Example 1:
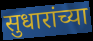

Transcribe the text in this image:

सुधारांच्या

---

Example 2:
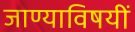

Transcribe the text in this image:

जाण्याविषयीं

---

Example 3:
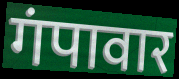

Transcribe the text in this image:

गंपावार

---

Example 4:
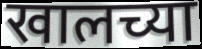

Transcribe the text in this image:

खालच्या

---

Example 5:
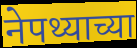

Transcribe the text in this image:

नेपथ्याच्या